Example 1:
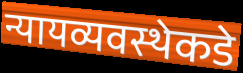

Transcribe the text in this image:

न्यायव्यवस्थेकडे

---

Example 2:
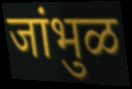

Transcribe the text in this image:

जांभुळ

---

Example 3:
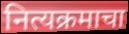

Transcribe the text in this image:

नित्यक्रमाचा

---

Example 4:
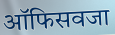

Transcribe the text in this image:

ऑफिसवजा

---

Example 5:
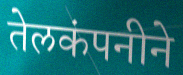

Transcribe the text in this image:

तेलकंपनीने